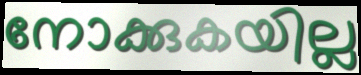
നോക്കുകയില്ല